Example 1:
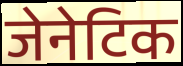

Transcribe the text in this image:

जेनेटिक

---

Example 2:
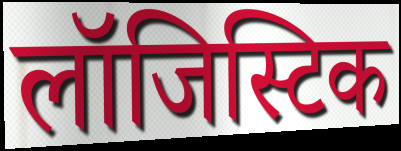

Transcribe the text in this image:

लॉजिस्टिक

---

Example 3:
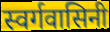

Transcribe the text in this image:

स्वर्गवासिनी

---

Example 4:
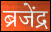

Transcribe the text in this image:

ब्रजेंद्र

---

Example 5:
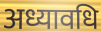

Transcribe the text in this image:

अध्यावधि